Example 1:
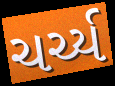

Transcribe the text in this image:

ચર્ચ્ય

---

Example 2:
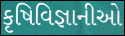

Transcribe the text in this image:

કૃષિવિજ્ઞાનીઓ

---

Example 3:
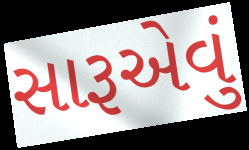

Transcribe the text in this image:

સારૂએવું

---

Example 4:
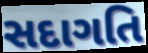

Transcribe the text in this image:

સદાગતિ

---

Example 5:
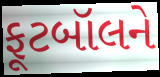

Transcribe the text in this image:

ફૂટબૉલને